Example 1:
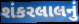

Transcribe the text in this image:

શંકરલાલનું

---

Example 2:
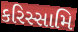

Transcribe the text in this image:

કરિસ્સામિ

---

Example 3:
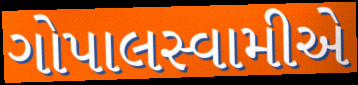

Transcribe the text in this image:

ગોપાલસ્વામીએ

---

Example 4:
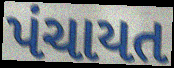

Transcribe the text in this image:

પંચાયત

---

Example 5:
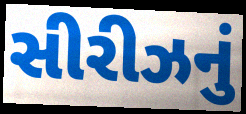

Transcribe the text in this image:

સીરીઝનું